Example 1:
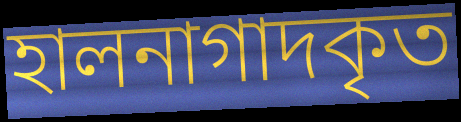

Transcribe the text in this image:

হালনাগাদকৃত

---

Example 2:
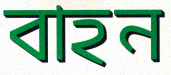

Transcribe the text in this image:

বাহন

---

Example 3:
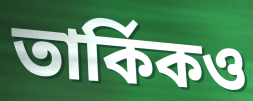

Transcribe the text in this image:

তার্কিকও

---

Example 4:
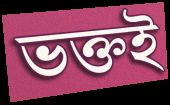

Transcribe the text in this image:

ভক্তই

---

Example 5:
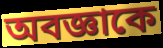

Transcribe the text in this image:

অবজ্ঞাকে